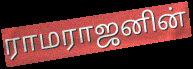
ராமராஜனின்